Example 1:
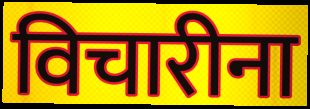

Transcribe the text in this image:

विचारीना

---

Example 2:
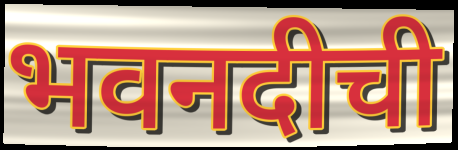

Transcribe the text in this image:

भवनदीची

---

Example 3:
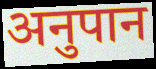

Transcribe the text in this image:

अनुपान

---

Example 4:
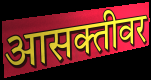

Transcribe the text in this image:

आसक्तीवर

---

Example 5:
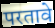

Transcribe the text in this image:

परतावे